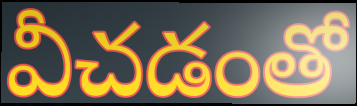
వీచడంతో